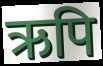
ऋपि